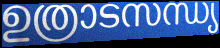
ഉത്രാടസന്ധ്യ